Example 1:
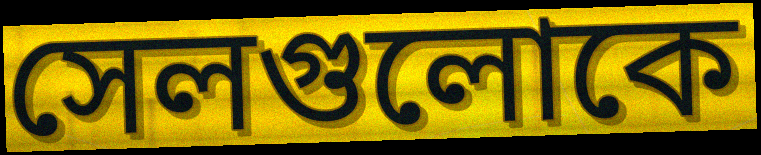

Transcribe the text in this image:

সেলগুলোকে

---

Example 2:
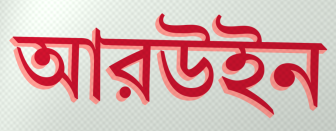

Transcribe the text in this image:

আরউইন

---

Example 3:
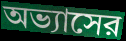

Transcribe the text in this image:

অভ্যাসের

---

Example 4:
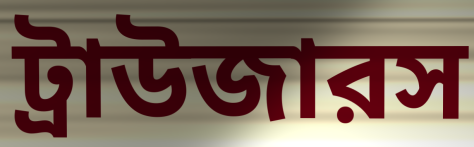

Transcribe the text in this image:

ট্রাউজারস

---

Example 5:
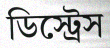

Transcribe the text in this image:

ডিস্ট্রেস